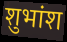
शुभांश